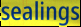
sealings